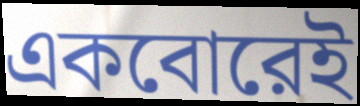
একবোরেই